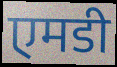
एमडी